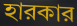
হারকার